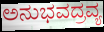
ಅನುಭವದ್ರವ್ಯ